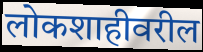
लोकशाहीवरील